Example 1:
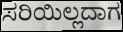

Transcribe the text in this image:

ಸರಿಯಿಲ್ಲದಾಗ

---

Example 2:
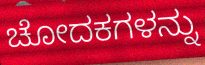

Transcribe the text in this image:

ಚೋದಕಗಳನ್ನು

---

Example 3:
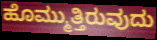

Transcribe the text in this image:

ಹೊಮ್ಮುತ್ತಿರುವುದು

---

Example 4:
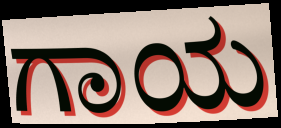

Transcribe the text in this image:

ಗಾಯ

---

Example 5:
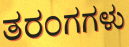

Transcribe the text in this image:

ತರಂಗಗಳು